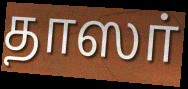
தாஸர்